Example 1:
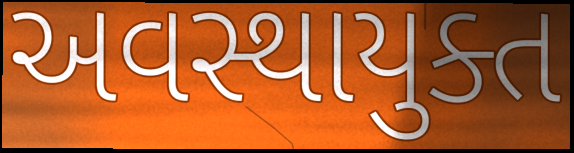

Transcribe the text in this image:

અવસ્થાયુક્ત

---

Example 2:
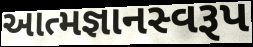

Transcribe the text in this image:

આત્મજ્ઞાનસ્વરૂપ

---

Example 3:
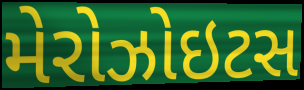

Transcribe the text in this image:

મેરોઝોઇટસ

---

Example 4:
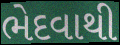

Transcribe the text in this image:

ભેદવાથી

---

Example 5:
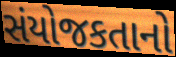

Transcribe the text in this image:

સંયોજકતાનો